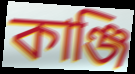
কাঞ্জি